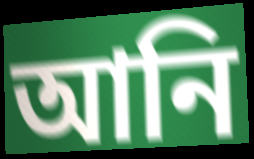
আনি